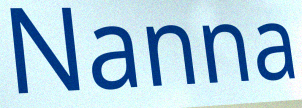
Nanna